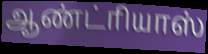
ஆண்ட்ரியாஸ்